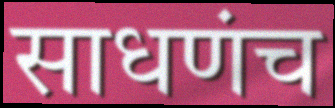
साधणंच